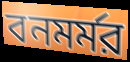
বনমর্মর